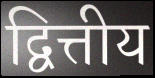
द्वित्तीय